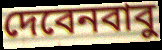
দেবেনবাবু